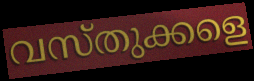
വസ്തുക്കളെ